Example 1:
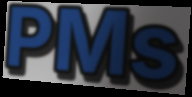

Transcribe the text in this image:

PMs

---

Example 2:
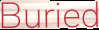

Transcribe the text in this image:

Buried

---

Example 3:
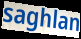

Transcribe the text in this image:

saghlan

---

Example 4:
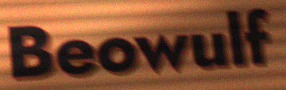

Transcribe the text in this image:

Beowulf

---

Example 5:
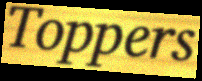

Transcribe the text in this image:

Toppers